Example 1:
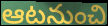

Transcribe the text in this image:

ఆటనుంచి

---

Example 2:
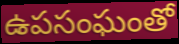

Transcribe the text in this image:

ఉపసంఘంతో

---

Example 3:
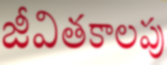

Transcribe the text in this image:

జీవితకాలపు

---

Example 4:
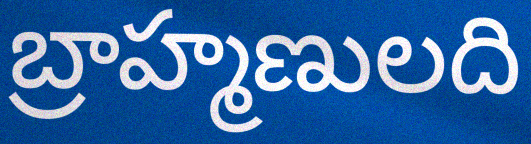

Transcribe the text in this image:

బ్రాహ్మణులది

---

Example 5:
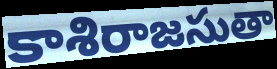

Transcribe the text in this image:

కాశిరాజసుతా